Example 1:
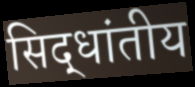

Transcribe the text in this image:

सिद्धांतीय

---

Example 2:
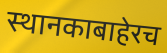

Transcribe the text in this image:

स्थानकाबाहेरच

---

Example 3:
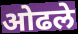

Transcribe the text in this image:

ओढले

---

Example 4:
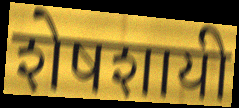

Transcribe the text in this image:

शेषशायी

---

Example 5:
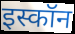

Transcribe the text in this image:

इस्कॉन